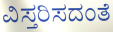
ವಿಸ್ತರಿಸದಂತೆ